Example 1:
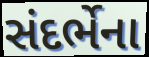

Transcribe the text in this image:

સંદર્ભેના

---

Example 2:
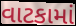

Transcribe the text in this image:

વાટકામાં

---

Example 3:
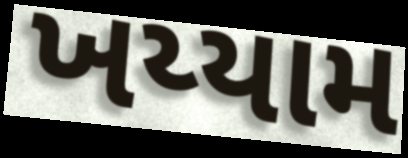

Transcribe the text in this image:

ખય્યામ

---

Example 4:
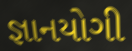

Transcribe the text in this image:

જ્ઞાનયોગી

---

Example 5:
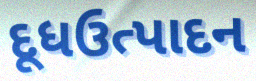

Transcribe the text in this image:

દૂધઉત્પાદન